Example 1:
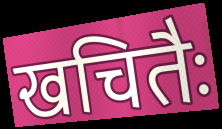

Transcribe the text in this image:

खचितैः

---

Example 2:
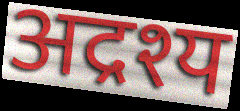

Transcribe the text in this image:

अद्रश्य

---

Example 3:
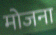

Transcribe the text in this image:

मोजना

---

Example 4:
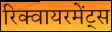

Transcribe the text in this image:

रिक्वायरमेंट्स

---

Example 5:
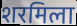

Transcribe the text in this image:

शरमिला